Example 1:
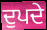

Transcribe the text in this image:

ਦੁਪਦੇ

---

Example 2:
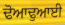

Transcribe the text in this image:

ਢੋਆਢੁਆਈ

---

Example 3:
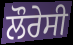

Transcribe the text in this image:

ਲੌਰੇਸੀ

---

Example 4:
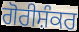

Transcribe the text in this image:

ਗੋਰੀਸ਼ੰਕਰ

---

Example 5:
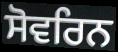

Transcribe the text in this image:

ਸੋਵਰਿਨ